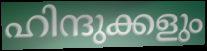
ഹിന്ദുക്കളും